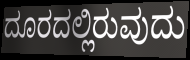
ದೂರದಲ್ಲಿರುವುದು